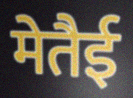
मेतैई